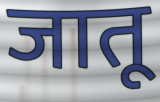
जातू